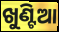
ଖୁଣ୍ଟିଆ